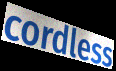
cordless